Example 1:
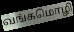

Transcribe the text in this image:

வங்கமொழி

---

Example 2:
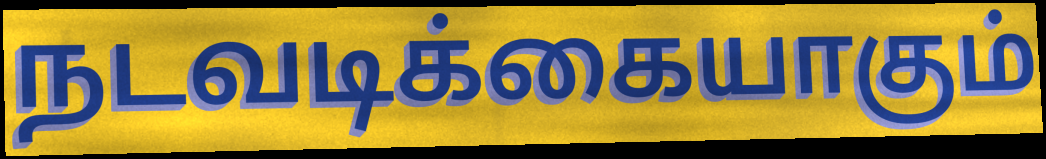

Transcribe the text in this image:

நடவடிக்கையாகும்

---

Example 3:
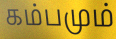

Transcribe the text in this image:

கம்பமும்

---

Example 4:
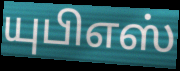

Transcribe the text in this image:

யுபிஎஸ்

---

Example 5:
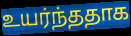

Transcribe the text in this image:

உயர்ந்ததாக